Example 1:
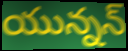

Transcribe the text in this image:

యున్నన్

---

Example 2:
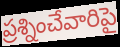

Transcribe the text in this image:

ప్రశ్నించేవారిపై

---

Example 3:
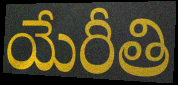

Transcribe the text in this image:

యేరీతి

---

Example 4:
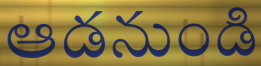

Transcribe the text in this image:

ఆడనుండి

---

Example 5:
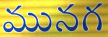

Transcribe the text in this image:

మునగ